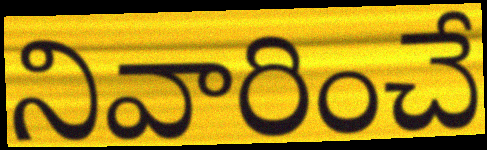
నివారించే